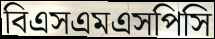
বিএসএমএসপিসি